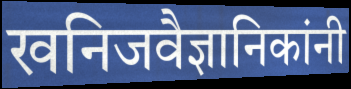
खनिजवैज्ञानिकांनी